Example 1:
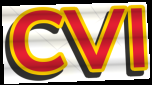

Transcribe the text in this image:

CVI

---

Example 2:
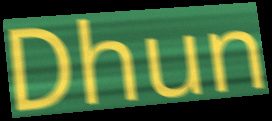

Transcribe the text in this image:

Dhun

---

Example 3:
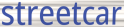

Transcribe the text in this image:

streetcar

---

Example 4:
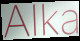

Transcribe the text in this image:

Alka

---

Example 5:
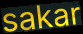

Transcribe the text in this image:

sakar